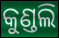
କୁଣ୍ଡଲି